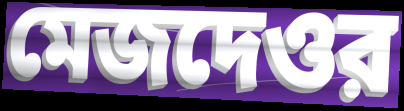
মেজদেওর